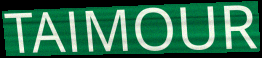
TAIMOUR